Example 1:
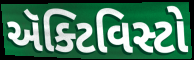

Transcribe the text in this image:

ઍક્ટિવિસ્ટો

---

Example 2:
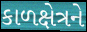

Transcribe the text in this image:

કાળક્ષેત્રને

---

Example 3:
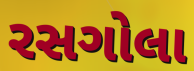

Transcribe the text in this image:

રસગોલા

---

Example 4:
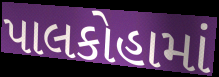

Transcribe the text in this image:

પાલકોહામાં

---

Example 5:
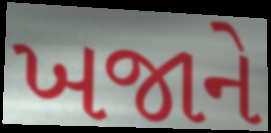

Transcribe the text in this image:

ખજાને